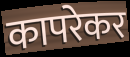
कापरेकर